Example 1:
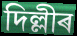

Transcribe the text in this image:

দিল্লীৰ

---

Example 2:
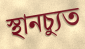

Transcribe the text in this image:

স্থানচ্যুত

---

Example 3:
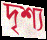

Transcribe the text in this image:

দৃশ্য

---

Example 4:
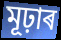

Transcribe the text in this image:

মূঢ়াৰ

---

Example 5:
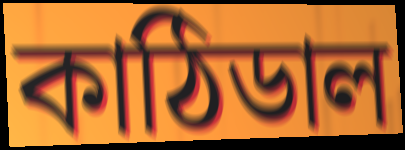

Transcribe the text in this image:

কাঠিডাল